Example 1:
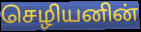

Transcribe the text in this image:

செழியனின்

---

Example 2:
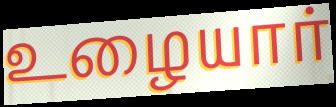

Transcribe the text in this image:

உழையார்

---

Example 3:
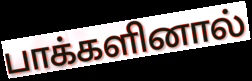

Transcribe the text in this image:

பாக்களினால்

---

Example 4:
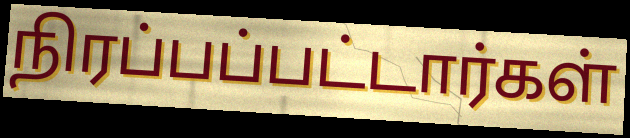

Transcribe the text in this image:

நிரப்பப்பட்டார்கள்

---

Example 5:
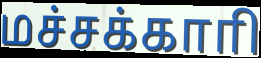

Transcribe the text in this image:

மச்சக்காரி